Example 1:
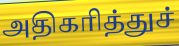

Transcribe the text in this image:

அதிகரித்துச்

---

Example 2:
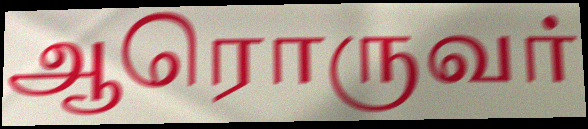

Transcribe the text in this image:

ஆரொருவர்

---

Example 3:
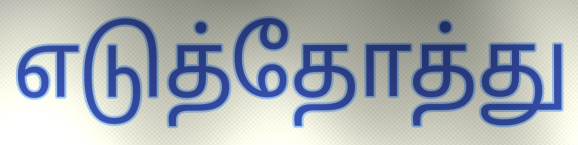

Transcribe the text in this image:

எடுத்தோத்து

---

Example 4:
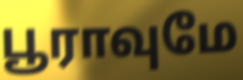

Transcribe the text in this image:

பூராவுமே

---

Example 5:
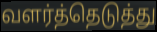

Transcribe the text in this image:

வளர்த்தெடுத்து